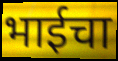
भाईचा